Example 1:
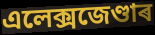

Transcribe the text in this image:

এলেক্সজেণ্ডাৰ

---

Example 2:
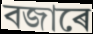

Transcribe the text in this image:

বজাৰে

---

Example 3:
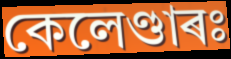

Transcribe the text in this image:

কেলেণ্ডাৰঃ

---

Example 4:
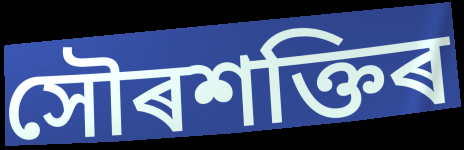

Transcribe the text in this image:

সৌৰশক্তিৰ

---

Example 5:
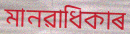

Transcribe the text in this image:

মানৱাধিকাৰ